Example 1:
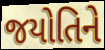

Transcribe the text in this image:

જયોતિને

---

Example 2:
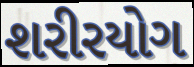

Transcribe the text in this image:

શરીરયોગ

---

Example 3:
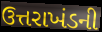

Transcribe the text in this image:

ઉત્તરાખંડની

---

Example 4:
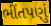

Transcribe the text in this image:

ભીંતપણું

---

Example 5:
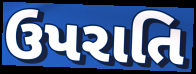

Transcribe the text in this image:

ઉપરાતિ